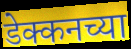
डेक्कनच्या